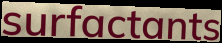
surfactants